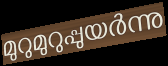
മുറുമുറുപ്പുയർന്നു